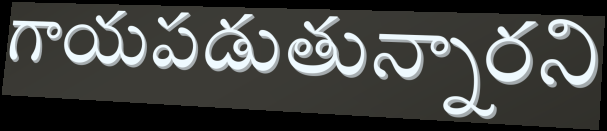
గాయపడుతున్నారని